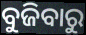
ବୁଜିବାରୁ